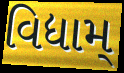
વિદ્યામ્